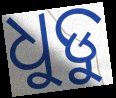
ଧୁଡୁ